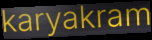
karyakram